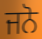
ਜਨੋ